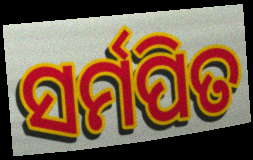
ସର୍ମପିତ